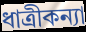
ধাত্রীকন্যা